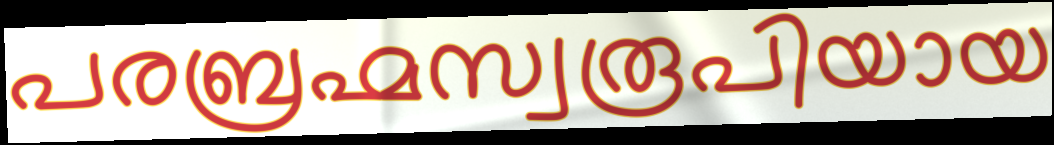
പരബ്രഹ്മസ്വരൂപിയായ